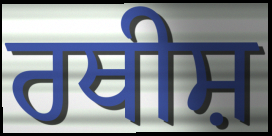
ਰਥੀਸ਼